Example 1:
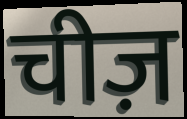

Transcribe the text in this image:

चीज़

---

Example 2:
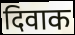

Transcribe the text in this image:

दिवाक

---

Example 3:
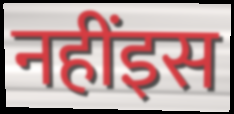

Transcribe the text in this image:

नहींइस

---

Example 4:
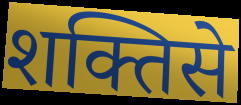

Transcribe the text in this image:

शक्तिसे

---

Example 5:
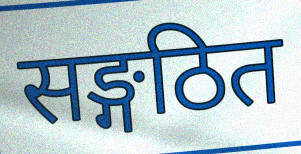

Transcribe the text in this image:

सङ्गठित